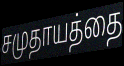
சமுதாயத்தை